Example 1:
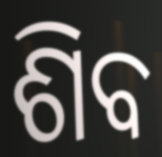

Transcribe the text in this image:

ଶିବ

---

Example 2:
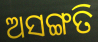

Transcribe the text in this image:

ଅସଙ୍ଗତି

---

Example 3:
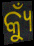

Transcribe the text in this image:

କ୍ୟୁଁ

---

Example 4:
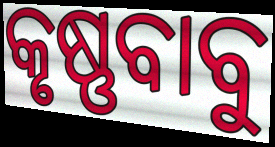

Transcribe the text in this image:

କୃଷ୍ଣବାବୁ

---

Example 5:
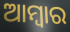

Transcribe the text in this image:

ଆମ୍ବାର